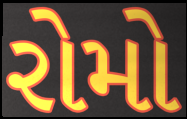
રોમો